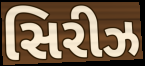
સિરીઝ